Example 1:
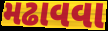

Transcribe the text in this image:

મઢાવવા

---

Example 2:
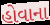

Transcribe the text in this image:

હોવાના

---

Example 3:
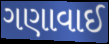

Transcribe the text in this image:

ગણાવાઈ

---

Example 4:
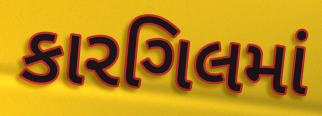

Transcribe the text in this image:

કારગિલમાં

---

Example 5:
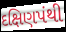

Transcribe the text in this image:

દક્ષિણપંથી